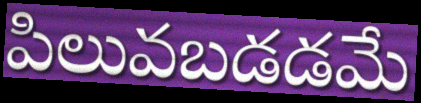
పిలువబడడమే